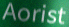
Aorist